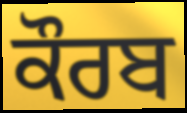
ਕੌਰਬ